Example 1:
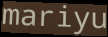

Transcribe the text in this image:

mariyu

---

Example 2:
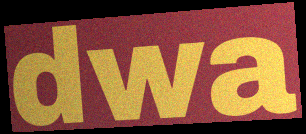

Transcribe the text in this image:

dwa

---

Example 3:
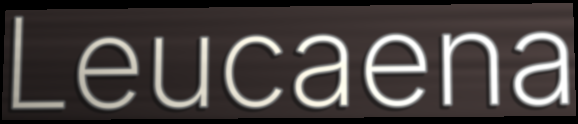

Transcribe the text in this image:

Leucaena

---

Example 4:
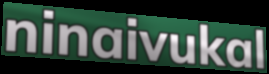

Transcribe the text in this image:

ninaivukal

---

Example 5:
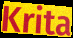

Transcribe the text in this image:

Krita